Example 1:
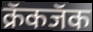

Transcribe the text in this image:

क्रॅकजॅक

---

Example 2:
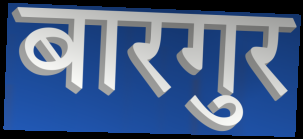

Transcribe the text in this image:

बारगुर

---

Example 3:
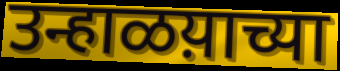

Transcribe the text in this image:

उन्हाळय़ाच्या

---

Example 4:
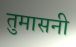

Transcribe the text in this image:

तुमासनी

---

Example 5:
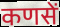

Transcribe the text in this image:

कणसें